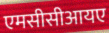
एमसीसीआयए